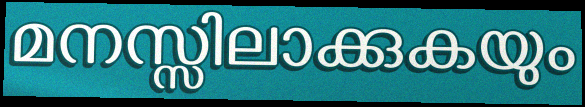
മനസ്സിലാക്കുകയും